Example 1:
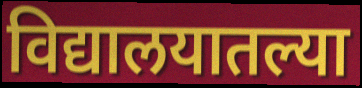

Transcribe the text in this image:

विद्यालयातल्या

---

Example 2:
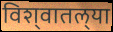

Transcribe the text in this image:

विश्वातल्या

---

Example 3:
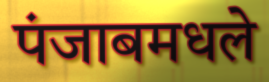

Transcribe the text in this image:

पंजाबमधले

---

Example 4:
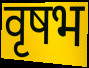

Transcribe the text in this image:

वृषभ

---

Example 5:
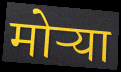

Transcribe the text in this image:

मोऱ्या